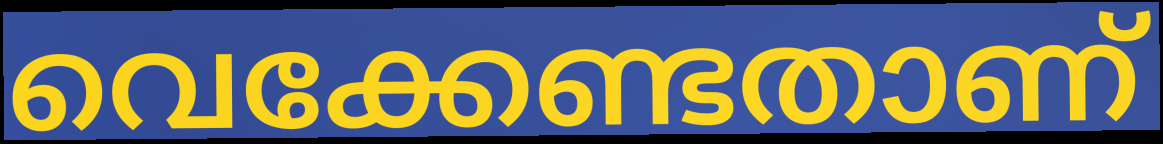
വെക്കേണ്ടതാണ്